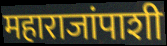
महाराजांपाशी